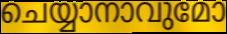
ചെയ്യാനാവുമോ